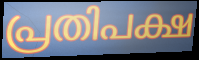
പ്രതിപക്ഷ